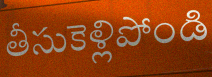
తీసుకెళ్లిపోండి